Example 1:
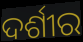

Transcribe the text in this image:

ଦର୍ଶୀର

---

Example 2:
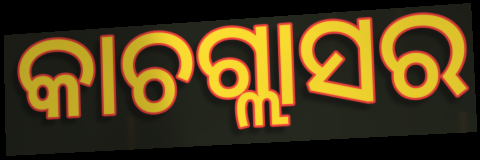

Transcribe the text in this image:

କାଚଗ୍ଲାସର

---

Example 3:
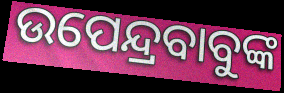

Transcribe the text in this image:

ଉପେନ୍ଦ୍ରବାବୁଙ୍କ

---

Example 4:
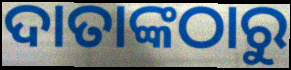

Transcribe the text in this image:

ଦାତାଙ୍କଠାରୁ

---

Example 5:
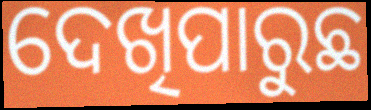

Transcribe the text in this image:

ଦେଖିପାରୁଛ